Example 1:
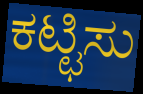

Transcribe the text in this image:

ಕಟ್ಟಿಸು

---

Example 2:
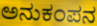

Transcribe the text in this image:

ಅನುಕಂಪನ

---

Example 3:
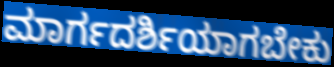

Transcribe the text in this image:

ಮಾರ್ಗದರ್ಶಿಯಾಗಬೇಕು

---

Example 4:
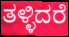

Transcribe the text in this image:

ತಳ್ಳಿದರೆ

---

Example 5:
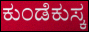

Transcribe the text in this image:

ಕುಂಡೆಕುಸ್ಕ